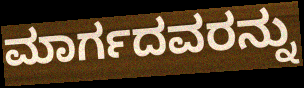
ಮಾರ್ಗದವರನ್ನು